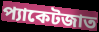
প্যাকেটজাত